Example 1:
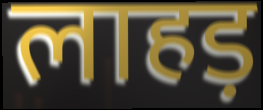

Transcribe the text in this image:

लाहड़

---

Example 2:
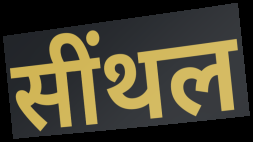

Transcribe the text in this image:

सींथल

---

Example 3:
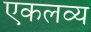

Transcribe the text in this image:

एकलव्य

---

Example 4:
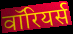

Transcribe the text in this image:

वॉरियर्स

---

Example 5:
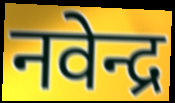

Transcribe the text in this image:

नवेन्द्र